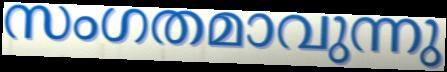
സംഗതമാവുന്നു